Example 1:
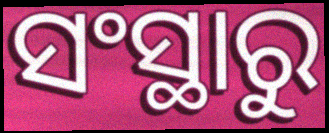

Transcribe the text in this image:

ସଂସ୍ଥାରୁ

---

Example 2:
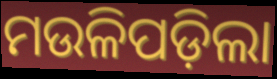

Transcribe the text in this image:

ମଉଳିପଡ଼ିଲା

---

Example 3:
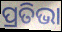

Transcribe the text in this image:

ପ୍ରତିଭା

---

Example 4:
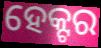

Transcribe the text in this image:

ହେକ୍ଟର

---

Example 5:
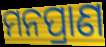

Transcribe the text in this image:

ମନପ୍ରାଣ